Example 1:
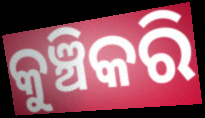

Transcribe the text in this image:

କୁଞ୍ଚିକରି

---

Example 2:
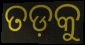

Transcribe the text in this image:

ତଡ଼କୁ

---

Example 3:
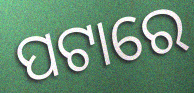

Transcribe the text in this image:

ପଟାରେ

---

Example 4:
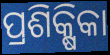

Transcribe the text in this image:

ପ୍ରଶିକ୍ଷିକା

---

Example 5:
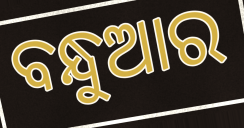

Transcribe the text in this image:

ବନ୍ଧୁଆର